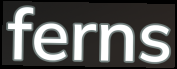
ferns